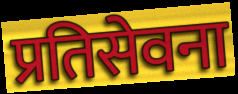
प्रतिसेवना